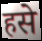
हसे